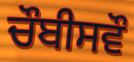
ਚੌਬੀਸਵੌ